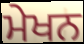
ਮੇਖਨ